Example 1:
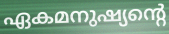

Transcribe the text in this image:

ഏകമനുഷ്യന്റെ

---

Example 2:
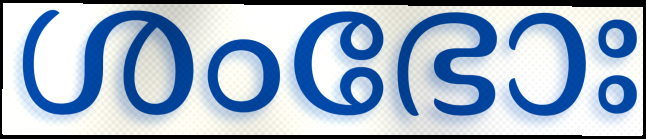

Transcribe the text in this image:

ശംഭോഃ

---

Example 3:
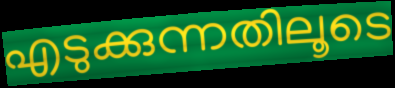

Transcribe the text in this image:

എടുക്കുന്നതിലൂടെ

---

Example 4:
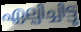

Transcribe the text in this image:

ഏല്പിച്ചിട്ടു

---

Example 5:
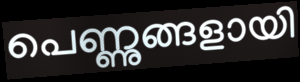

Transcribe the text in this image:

പെണ്ണുങ്ങളായി